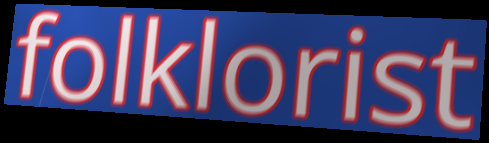
folklorist